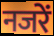
नजरें